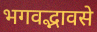
भगवद्भावसे